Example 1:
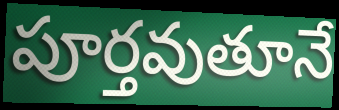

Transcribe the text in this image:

పూర్తవుతూనే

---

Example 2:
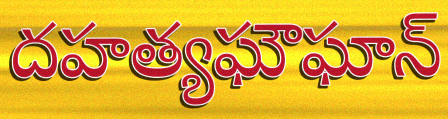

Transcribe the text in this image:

దహత్యఘౌఘాన్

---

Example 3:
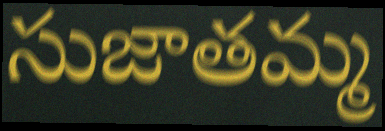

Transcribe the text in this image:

సుజాతమ్మ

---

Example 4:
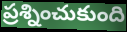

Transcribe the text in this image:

ప్రశ్నించుకుంది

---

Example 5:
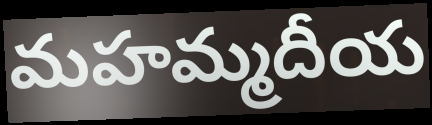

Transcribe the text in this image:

మహమ్మదీయ